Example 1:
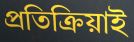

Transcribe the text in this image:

প্রতিক্রিয়াই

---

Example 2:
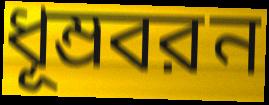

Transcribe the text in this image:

ধূম্রবরন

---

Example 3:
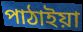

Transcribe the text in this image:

পাঠাইয়া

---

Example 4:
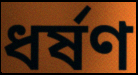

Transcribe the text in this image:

ধর্ষণ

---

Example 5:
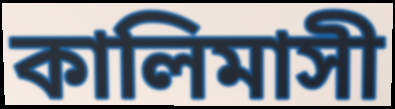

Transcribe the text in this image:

কালিমাসী